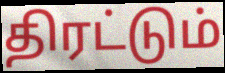
திரட்டும்